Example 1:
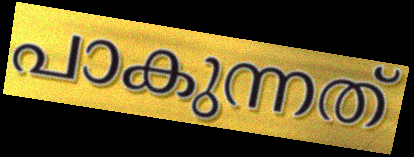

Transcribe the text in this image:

പാകുന്നത്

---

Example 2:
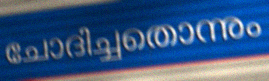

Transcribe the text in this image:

ചോദിച്ചതൊന്നും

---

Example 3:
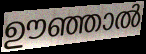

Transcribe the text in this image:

ഊഞ്ഞാൽ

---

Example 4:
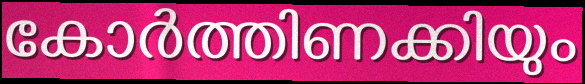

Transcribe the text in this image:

കോർത്തിണക്കിയും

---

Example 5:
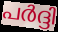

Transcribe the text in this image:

പർദ്ദി